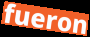
fueron